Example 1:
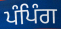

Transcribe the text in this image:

ਪੰਪਿੰਗ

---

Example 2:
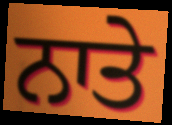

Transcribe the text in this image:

ਨਾਤੇ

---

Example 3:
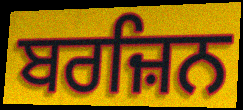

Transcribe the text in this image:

ਬਰਜ਼ਿਨ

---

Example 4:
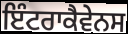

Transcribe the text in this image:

ਇੰਟਰਾਕੈਵੇਨਸ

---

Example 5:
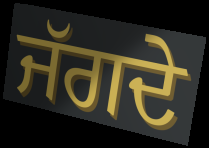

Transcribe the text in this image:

ਜੱਗਦੇ